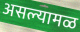
असल्यामळ